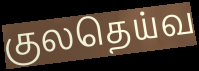
குலதெய்வ